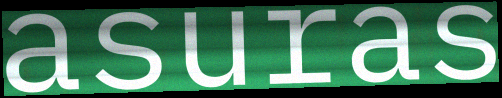
asuras